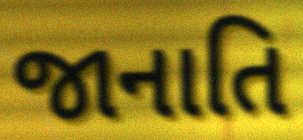
જાનાતિ